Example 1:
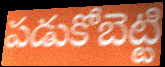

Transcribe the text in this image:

పడుకోబెట్టి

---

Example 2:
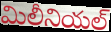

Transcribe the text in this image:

మిలీనియల్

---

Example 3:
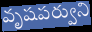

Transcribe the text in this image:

వృషపర్వుని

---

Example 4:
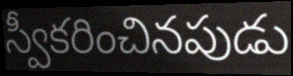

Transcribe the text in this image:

స్వీకరించినపుడు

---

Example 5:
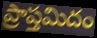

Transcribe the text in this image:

ప్రాప్తమిదం